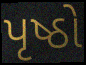
પૃષ્ઠો